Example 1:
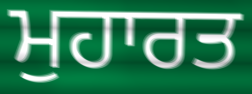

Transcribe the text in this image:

ਮੁਹਾਰਤ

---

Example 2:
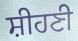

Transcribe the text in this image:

ਸ਼ੀਹਣੀ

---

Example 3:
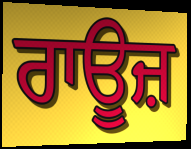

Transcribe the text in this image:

ਰਾਊਜ਼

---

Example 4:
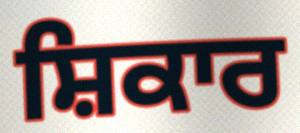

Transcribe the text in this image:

ਸ਼ਿਕਾਰ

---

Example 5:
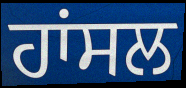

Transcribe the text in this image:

ਹਾਂਸਲ